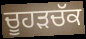
ਚੂਹਡ਼ਚੱਕ